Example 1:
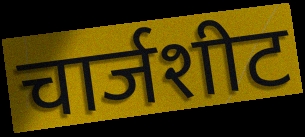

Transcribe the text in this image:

चार्जशीट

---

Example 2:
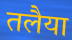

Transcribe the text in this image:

तलैया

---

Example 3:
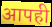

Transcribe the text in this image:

आपही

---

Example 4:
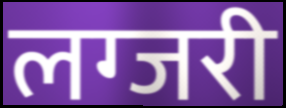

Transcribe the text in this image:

लग्जरी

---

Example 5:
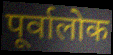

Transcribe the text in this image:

पूर्वालोक